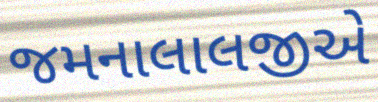
જમનાલાલજીએ